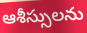
ఆశీస్సులను